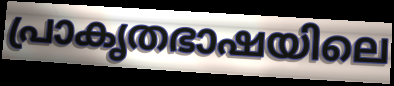
പ്രാകൃതഭാഷയിലെ